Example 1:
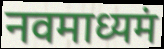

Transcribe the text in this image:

नवमाध्यमं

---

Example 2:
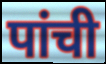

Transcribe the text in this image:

पांची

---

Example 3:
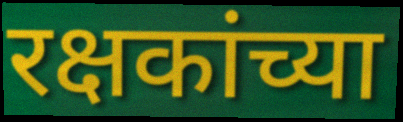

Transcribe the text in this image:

रक्षकांच्या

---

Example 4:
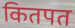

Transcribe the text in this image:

कितपत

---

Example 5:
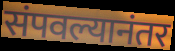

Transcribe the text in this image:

संपवल्यानंतर